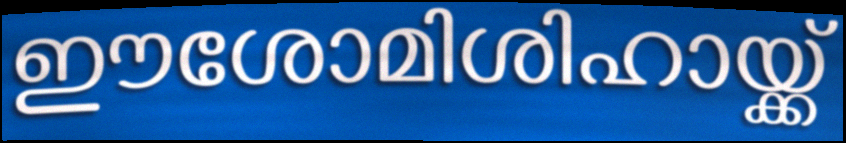
ഈശോമിശിഹായ്ക്ക്